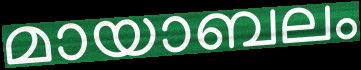
മായാബലം